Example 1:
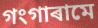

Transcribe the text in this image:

গংগাৰামে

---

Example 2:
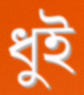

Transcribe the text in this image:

ধুই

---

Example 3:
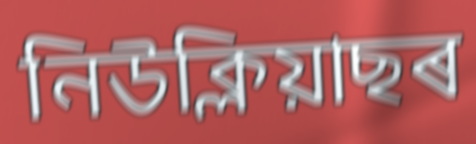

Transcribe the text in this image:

নিউক্লিয়াছৰ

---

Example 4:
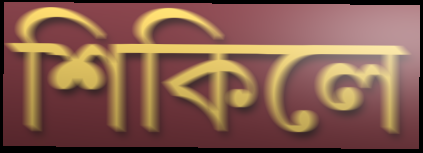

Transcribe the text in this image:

শিকিলে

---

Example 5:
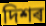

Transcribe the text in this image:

দিশৰ